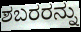
ಶಬರರನ್ನು